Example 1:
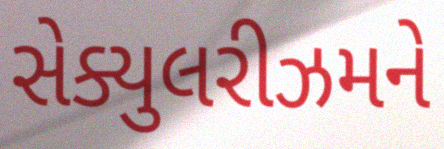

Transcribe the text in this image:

સેક્યુલરીઝમને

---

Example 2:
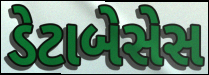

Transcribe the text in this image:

ડેટાબેસેસ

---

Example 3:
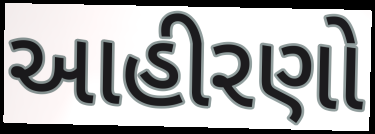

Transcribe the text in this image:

આહીરણો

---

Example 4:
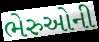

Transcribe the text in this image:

ભેરુઓની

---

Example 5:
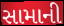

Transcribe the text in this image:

સામાની